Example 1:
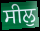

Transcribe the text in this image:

ਸੀਲੁ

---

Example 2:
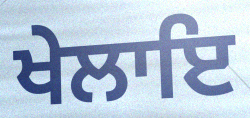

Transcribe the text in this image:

ਖੇਲਾਇ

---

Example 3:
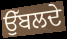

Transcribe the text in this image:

ਉੱਬਲਦੇ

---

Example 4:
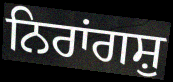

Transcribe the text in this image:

ਨਿਰਾਂਗਸ਼ੁ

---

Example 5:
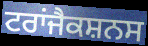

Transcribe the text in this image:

ਟਰਾਂਜੈਕਸ਼ਨਸ